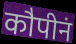
कौपीनं